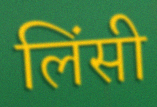
लिंसी